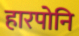
हारपोनि